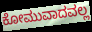
ಕೋಮುವಾದವಲ್ಲ